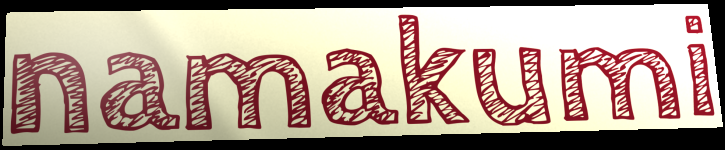
namakumi